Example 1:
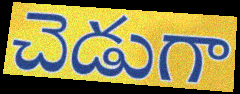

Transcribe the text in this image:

చెడుగా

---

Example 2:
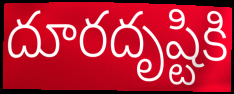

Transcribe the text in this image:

దూరదృష్టికి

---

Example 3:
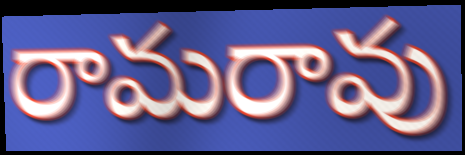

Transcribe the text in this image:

రామరావు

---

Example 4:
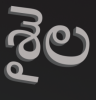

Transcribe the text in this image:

శైల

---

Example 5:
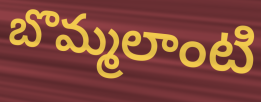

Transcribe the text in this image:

బొమ్మలాంటి